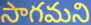
సాగమని